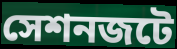
সেশনজটে